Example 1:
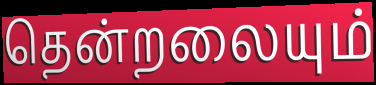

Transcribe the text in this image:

தென்றலையும்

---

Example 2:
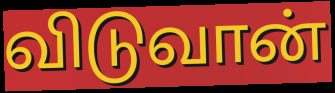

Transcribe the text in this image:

விடுவான்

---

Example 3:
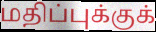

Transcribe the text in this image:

மதிப்புக்குக்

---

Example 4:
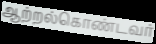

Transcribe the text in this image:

ஆற்றல்கொண்டவர்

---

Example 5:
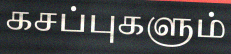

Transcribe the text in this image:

கசப்புகளும்